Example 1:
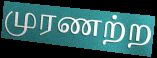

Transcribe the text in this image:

முரணற்ற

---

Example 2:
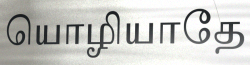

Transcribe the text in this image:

யொழியாதே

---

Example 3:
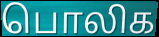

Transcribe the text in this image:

பொலிக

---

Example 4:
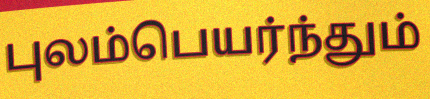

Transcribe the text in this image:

புலம்பெயர்ந்தும்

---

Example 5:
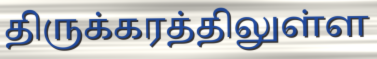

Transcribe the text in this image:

திருக்கரத்திலுள்ள